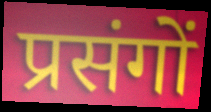
प्रसंगों